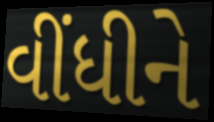
વીંધીને